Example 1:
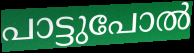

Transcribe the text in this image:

പാട്ടുപോൽ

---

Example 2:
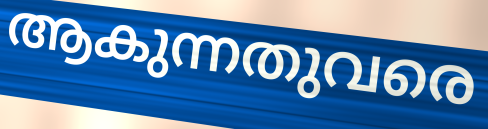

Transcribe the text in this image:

ആകുന്നതുവരെ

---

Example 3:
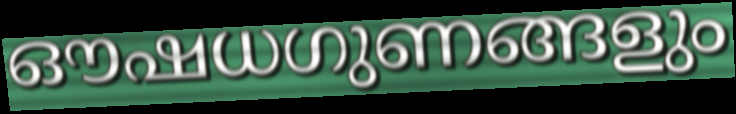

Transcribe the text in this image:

ഔഷധഗുണങ്ങളും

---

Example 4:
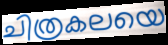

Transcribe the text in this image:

ചിത്രകലയെ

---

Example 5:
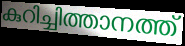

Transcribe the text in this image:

കുറിച്ചിത്താനത്ത്